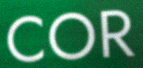
COR